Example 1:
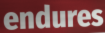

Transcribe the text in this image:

endures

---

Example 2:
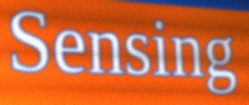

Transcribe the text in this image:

Sensing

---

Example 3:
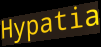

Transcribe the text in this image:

Hypatia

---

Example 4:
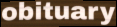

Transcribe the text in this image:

obituary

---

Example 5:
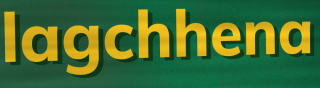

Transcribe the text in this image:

lagchhena